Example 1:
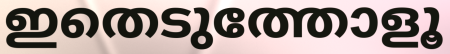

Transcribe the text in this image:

ഇതെടുത്തോളൂ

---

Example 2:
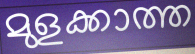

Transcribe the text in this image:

മുളക്കാത്ത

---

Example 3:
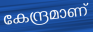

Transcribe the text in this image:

കേന്ദ്രമാണ്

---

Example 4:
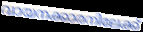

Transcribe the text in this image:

വായനക്കാരനിലേക്ക്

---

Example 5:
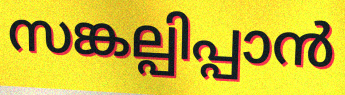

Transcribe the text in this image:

സങ്കല്പിപ്പാൻ